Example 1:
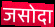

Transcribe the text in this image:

जसोदा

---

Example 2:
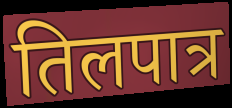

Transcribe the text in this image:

तिलपात्र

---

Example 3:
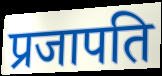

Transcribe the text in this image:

प्रजापति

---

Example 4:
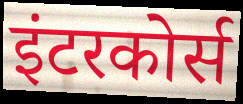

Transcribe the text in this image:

इंटरकोर्स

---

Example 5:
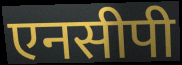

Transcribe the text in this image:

एनसीपी